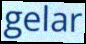
gelar